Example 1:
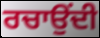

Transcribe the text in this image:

ਰਚਾਉਂਦੀ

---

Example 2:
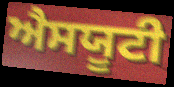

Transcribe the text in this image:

ਐਸਯੂਟੀ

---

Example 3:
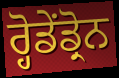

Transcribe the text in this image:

ਰ੍ਹੋਡੇਂਡ੍ਰੋਨ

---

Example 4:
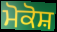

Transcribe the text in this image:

ਮੋਕੋਸ਼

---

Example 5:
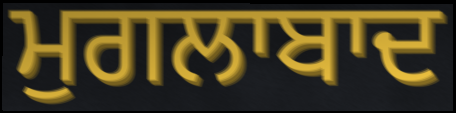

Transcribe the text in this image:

ਮੁਗਲਾਬਾਦ